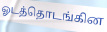
ஓடத்தொடங்கின